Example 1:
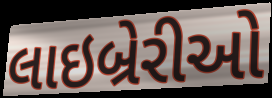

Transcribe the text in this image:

લાઇબ્રેરીઓ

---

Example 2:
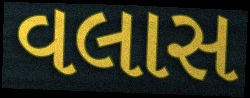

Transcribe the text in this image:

વલાસ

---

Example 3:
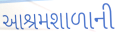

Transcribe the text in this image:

આશ્રમશાળાની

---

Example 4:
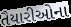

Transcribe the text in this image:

તૈયારીઓના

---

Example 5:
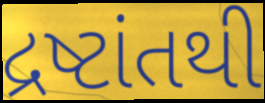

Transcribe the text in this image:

દ્રષ્ટાંતથી